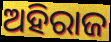
ଅହିରାଜ